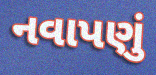
નવાપણું